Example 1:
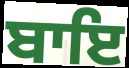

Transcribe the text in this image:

ਬਾਇ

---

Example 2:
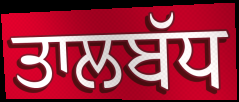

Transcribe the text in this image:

ਤਾਲਬੱਧ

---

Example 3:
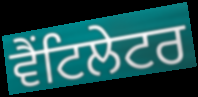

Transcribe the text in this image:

ਵੈਂਟਿਲੇਟਰ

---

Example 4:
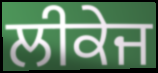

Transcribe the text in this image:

ਲੀਕੇਜ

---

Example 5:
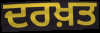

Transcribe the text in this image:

ਦਰਖ਼ਤ